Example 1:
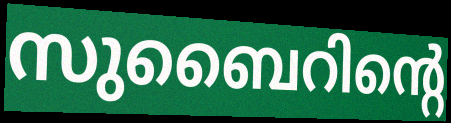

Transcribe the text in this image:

സുബൈറിന്റെ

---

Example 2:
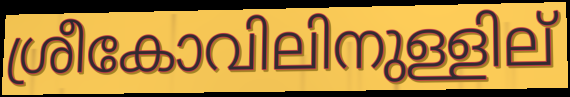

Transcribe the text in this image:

ശ്രീകോവിലിനുള്ളില്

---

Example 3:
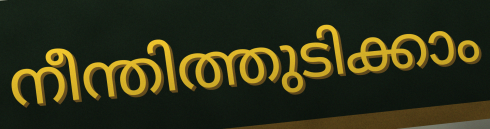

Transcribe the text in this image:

നീന്തിത്തുടിക്കാം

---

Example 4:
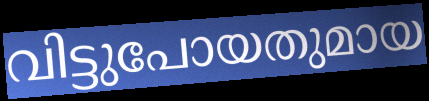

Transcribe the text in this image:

വിട്ടുപോയതുമായ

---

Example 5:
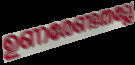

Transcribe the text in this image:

ഉണരേണ്ടതല്ലേ